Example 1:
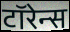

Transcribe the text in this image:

टॉरेन्स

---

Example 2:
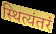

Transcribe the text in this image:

स्थित्यंतरं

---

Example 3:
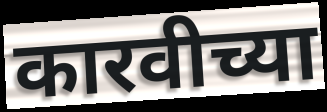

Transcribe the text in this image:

कारवीच्या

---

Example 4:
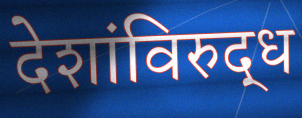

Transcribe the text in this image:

देशांविरुद्ध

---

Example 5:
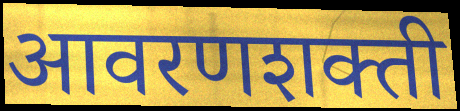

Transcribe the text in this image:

आवरणशक्ती